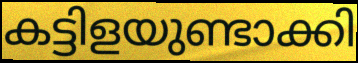
കട്ടിളയുണ്ടാക്കി